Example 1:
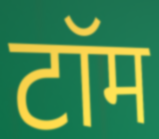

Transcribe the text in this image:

टॉम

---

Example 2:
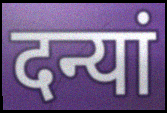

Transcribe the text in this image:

दन्यां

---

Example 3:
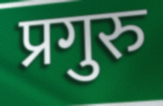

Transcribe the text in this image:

प्रगुरु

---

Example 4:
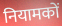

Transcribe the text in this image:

नियामकों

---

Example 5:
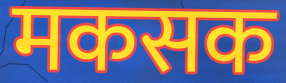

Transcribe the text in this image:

मकसक